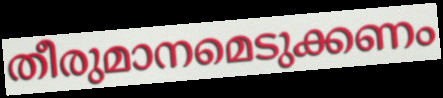
തീരുമാനമെടുക്കണം